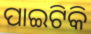
ପାଇଟିକି